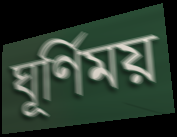
ঘূর্ণিময়